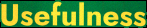
Usefulness